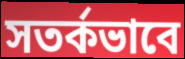
সতর্কভাবে